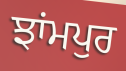
ਝਾਂਮਪੁਰ